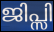
ജിപ്സി